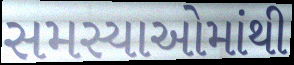
સમસ્યાઓમાંથી